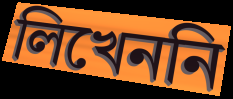
লিখেননি